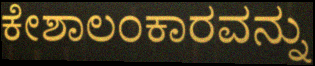
ಕೇಶಾಲಂಕಾರವನ್ನು